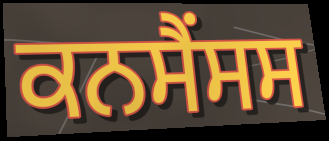
ਕਨਸੈਂਸਸ